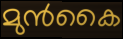
മുൻകൈ